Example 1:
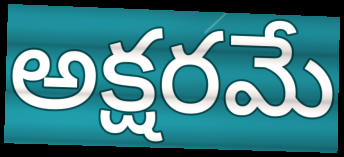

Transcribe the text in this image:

అక్షరమే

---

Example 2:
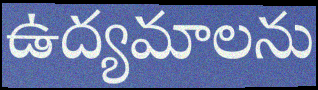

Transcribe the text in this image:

ఉద్యమాలను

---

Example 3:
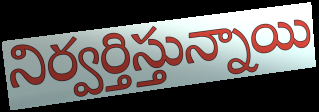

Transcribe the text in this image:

నిర్వర్తిస్తున్నాయి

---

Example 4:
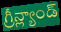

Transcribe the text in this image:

గ్రీన్ల్యాండ్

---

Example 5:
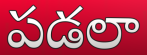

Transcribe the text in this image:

పడలా